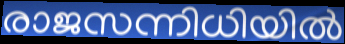
രാജസന്നിധിയിൽ